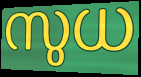
സുധ